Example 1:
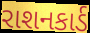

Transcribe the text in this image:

રાશનકાર્ડ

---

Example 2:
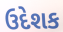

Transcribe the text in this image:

ઉદેશક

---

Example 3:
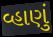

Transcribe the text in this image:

વ્હાણું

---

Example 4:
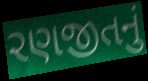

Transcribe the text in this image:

રણજીતનું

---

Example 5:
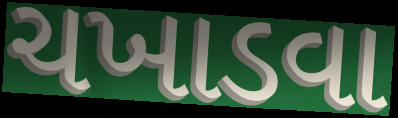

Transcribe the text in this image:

ચખાડવા